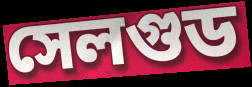
সেলগুড